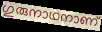
ഗുരുനാഥനാണ്